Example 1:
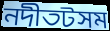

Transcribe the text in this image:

নদীতটসম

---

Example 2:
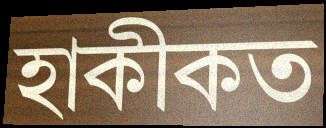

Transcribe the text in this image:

হাকীকত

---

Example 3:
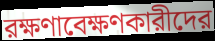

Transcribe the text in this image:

রক্ষণাবেক্ষণকারীদের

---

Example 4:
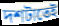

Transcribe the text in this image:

দশটাতেই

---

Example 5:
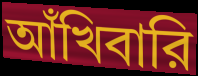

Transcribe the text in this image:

আঁখিবারি